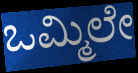
ಒಮ್ಮಿಲೇ